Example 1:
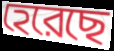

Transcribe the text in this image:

হেরেছে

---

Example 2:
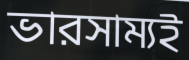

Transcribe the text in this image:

ভারসাম্যই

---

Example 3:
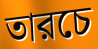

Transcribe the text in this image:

তারচে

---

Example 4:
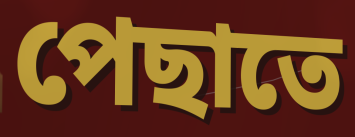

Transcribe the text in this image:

পেছাতে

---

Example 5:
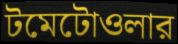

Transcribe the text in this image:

টমেটোওলার